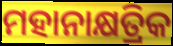
ମହାନାକ୍ଷତ୍ରିକ